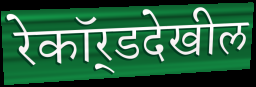
रेकॉर्डदेखील